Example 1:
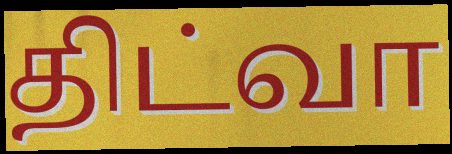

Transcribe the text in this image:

திட்வா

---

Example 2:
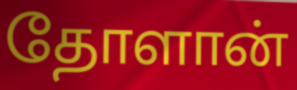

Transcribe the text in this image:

தோளான்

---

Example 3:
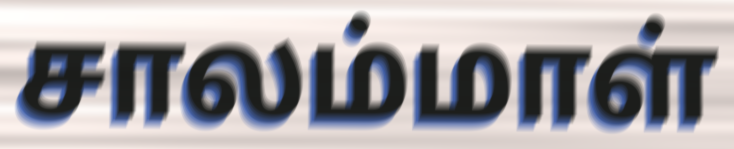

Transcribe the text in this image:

சாலம்மாள்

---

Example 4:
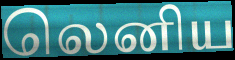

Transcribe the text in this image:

லெனிய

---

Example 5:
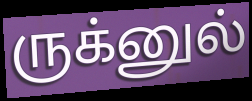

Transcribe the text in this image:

ருக்னுல்